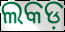
ଲକଡ଼